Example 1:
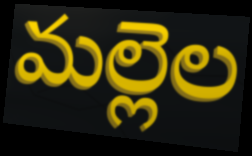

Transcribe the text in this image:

మల్లెల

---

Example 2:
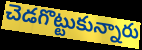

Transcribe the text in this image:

చెడగొట్టుకున్నారు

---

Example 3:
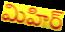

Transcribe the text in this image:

మిహిర్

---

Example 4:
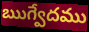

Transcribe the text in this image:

ఋగ్వేదము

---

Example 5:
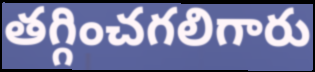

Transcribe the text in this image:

తగ్గించగలిగారు